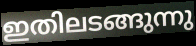
ഇതിലടങ്ങുന്നു